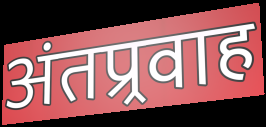
अंतप्र्रवाह